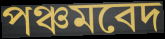
পঞ্চমবেদ